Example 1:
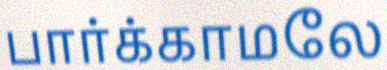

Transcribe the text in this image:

பார்க்காமலே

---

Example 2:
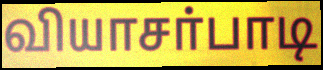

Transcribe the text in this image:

வியாசர்பாடி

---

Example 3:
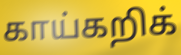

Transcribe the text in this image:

காய்கறிக்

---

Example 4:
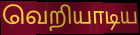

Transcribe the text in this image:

வெறியாடிய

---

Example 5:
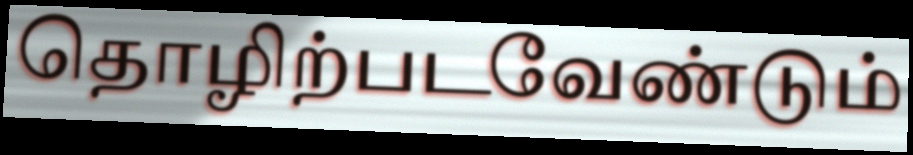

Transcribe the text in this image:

தொழிற்படவேண்டும்